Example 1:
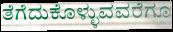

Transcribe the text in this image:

ತೆಗೆದುಕೊಳ್ಳುವವರೆಗೂ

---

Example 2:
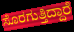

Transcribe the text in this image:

ಸೊರಗುತ್ತಿದ್ದಾರೆ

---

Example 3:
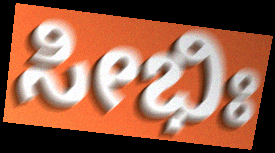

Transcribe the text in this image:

ಸೀಭಿಃ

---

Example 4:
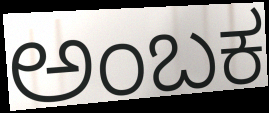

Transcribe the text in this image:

ಅಂಬಕ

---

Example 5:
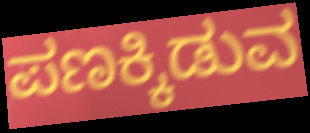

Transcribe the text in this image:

ಪಣಕ್ಕಿಡುವ